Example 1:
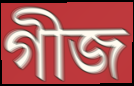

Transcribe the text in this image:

গীজ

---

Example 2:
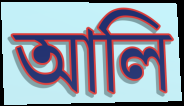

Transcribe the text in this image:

আলি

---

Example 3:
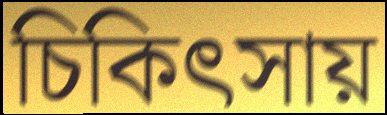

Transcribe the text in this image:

চিকিৎসায়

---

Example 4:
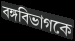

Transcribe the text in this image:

বঙ্গবিভাগকে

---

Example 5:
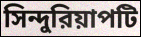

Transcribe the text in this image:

সিন্দুরিয়াপটি